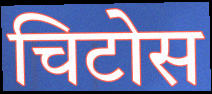
चिटोस